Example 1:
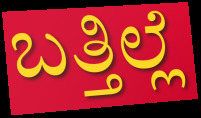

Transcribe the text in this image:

ಬತ್ತಿಲ್ಲೆ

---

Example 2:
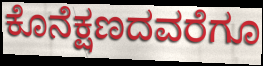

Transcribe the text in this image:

ಕೊನೆಕ್ಷಣದವರೆಗೂ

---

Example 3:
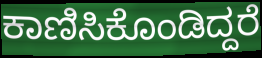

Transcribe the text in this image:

ಕಾಣಿಸಿಕೊಂಡಿದ್ದರೆ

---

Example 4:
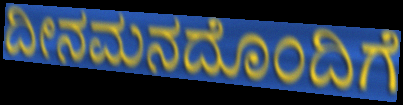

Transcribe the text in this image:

ದೀನಮನದೊಂದಿಗೆ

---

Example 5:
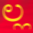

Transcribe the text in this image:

ಲ್ಲ